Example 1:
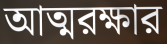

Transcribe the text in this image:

আত্মরক্ষার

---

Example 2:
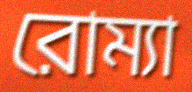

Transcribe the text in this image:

রোম্যা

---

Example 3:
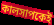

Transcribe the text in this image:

কালসাপকেই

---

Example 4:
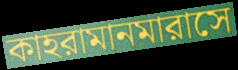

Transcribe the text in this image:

কাহরামানমারাসে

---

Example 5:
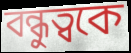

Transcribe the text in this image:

বন্ধুত্বকে